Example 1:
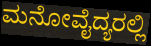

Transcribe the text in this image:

ಮನೋವೈದ್ಯರಲ್ಲಿ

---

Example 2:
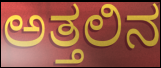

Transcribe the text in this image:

ಅತ್ತಲಿನ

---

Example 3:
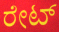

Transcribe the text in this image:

ರೇಟ್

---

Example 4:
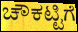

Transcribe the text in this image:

ಚೌಕಟ್ಟಿಗೆ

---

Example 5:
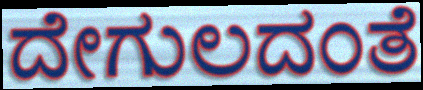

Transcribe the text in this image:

ದೇಗುಲದಂತೆ